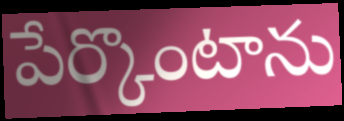
పేర్కొంటాను